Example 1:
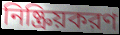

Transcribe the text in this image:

নিষ্ক্রিয়করণ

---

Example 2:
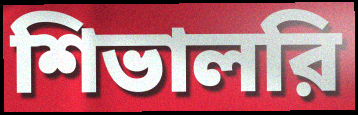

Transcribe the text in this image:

শিভালরি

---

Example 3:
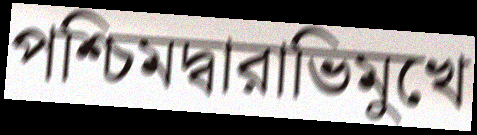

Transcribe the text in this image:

পশ্চিমদ্বারাভিমুখে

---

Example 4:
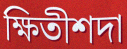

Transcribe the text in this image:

ক্ষিতীশদা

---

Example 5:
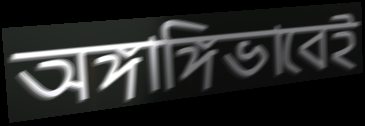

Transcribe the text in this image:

অঙ্গাঙ্গিভাবেই